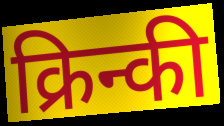
क्रिन्की